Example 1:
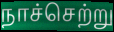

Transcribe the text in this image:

நாச்செற்று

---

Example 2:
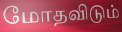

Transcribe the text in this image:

மோதவிடும்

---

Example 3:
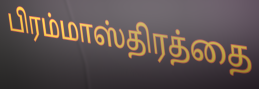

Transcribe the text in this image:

பிரம்மாஸ்திரத்தை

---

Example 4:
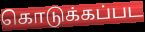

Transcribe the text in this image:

கொடுக்கப்பட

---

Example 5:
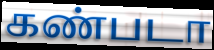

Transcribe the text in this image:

கண்படா